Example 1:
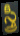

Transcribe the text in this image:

స్త్రీ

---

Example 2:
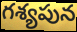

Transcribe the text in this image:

గశ్యపున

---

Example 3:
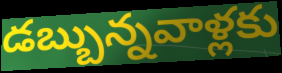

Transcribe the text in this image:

డబ్బున్నవాళ్లకు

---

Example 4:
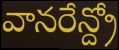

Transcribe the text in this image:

వానరేన్ద్రో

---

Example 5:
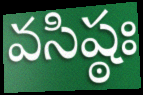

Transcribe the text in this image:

వసిష్ఠః